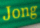
Jong